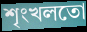
শৃংখলতো